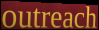
outreach